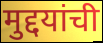
मुद्दयांची